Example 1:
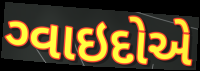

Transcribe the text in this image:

ગ્વાઇદોએ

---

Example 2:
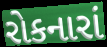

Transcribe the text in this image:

રોકનારાં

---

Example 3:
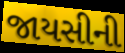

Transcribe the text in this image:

જાયસીની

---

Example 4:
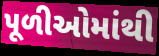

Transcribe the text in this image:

પૂળીઓમાંથી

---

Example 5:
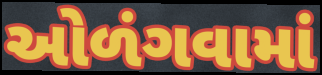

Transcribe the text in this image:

ઓળંગવામાં